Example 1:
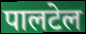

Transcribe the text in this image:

पालटेल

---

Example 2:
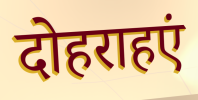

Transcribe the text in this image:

दोहराहएं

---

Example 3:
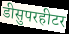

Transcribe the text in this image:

डीसुपरहीटर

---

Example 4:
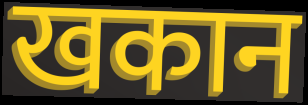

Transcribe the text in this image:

खकान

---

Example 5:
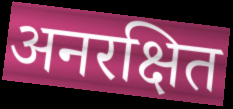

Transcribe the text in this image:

अनरक्षित